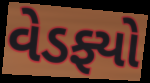
વેડફ્યો